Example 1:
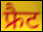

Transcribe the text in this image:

फ्रैट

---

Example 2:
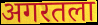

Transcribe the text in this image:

अगरतला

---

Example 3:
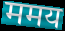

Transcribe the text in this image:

ममय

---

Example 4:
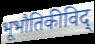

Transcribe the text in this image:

भूभौतिकीविद्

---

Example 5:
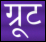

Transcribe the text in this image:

ग्रूट